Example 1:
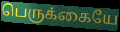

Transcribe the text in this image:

பெருக்கையே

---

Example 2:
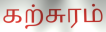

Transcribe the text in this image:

கற்சுரம்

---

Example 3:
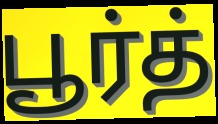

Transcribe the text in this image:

பூர்த்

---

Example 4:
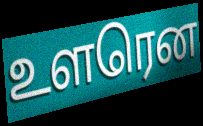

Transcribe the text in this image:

உளரென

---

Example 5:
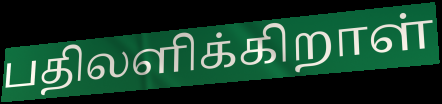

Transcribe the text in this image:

பதிலளிக்கிறாள்